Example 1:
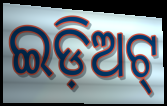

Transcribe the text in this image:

ଇଡ଼ିଅଟ୍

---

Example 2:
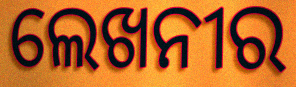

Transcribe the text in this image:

ଲେଖନୀର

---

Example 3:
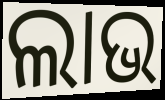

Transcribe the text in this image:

ଲାଭ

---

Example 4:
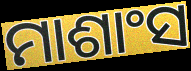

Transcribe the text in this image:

ମାଶାଂସ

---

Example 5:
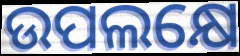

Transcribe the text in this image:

ଉପଲକ୍ଷେ